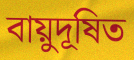
বায়ুদূষিত